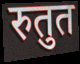
रुतुत